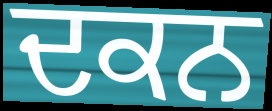
ਦਕਨ